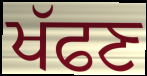
ਖੱਫਣ